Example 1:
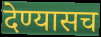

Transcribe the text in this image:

देण्यासच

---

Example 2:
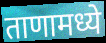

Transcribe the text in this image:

ताणामध्ये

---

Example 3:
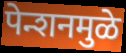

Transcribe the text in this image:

पेन्शनमुळे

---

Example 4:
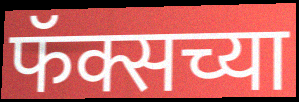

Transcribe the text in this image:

फॅक्सच्या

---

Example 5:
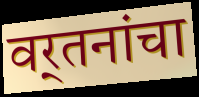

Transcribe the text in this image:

वर्तनांचा